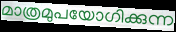
മാത്രമുപയോഗിക്കുന്ന